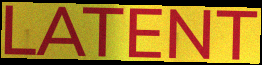
LATENT